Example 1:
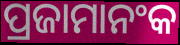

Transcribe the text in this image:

ପ୍ରଜାମାନଂକ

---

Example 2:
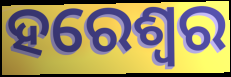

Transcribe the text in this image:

ହରେଶ୍ୱର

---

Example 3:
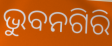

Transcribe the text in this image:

ଭୁବନଗିରି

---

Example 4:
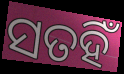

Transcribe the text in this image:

ସତହିଁ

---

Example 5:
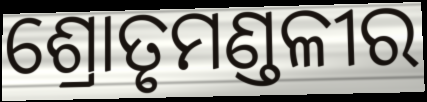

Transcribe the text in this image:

ଶ୍ରୋତୃମଣ୍ଡଳୀର